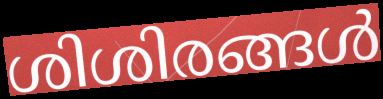
ശിശിരങ്ങൾ